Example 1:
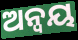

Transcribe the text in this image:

ଅନ୍ଵୟ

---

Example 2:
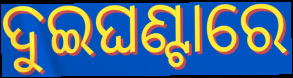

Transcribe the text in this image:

ଦୁଇଘଣ୍ଟାରେ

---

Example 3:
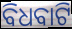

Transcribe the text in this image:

ବିଧବାଟି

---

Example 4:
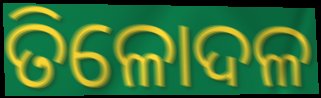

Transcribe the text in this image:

ତିଳୋଦଳ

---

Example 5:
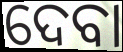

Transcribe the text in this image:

ଦେବା